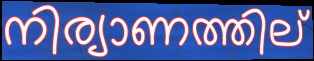
നിര്യാണത്തില്